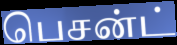
பெசன்ட்